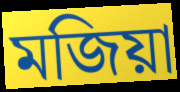
মজিয়া